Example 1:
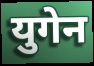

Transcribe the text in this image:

युगेन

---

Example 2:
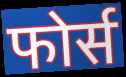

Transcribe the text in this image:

फोर्स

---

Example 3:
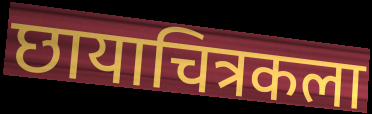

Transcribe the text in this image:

छायाचित्रकला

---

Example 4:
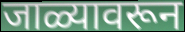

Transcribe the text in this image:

जाळ्यावरून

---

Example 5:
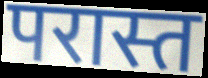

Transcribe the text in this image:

परास्त